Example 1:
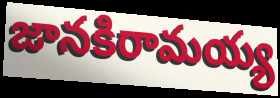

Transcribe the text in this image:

జానకిరామయ్య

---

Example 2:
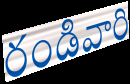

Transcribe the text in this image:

రండివారి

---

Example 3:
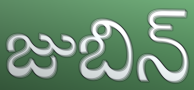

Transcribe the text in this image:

జుబిన్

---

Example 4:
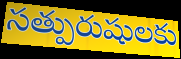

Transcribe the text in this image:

సత్పురుషులకు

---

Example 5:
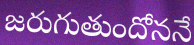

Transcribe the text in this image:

జరుగుతుందోననే